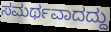
ಸಮರ್ಥವಾದದ್ದು